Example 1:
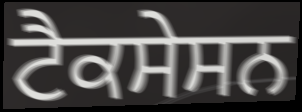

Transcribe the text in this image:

ਟੈਕਸੇਸਨ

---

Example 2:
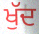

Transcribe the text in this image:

ਖੁੱਦ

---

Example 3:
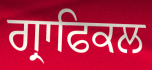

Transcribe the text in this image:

ਗ੍ਰਾਫਿਕਲ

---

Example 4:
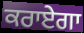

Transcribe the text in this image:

ਕਰਾਏਗਾ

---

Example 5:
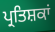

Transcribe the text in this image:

ਪ੍ਰਤਿਸ਼ਕਾਂ